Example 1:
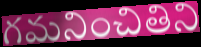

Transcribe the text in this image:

గమనించితిని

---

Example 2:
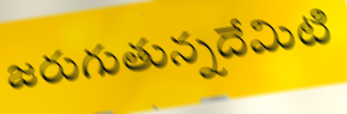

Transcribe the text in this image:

జరుగుతున్నదేమిటి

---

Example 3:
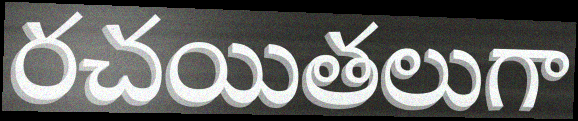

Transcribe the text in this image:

రచయితలుగా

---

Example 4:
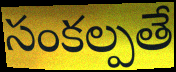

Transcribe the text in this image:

సంకల్పతే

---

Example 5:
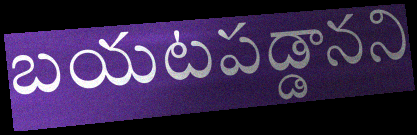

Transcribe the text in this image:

బయటపడ్డానని